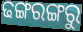
ଢଙ୍ଗରଙ୍ଗରୁ